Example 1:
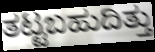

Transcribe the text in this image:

ತಟ್ಟಬಹುದಿತ್ತು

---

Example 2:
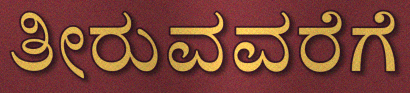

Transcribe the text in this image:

ತೀರುವವರೆಗೆ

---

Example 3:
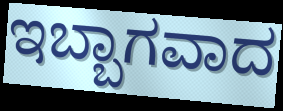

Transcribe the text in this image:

ಇಬ್ಬಾಗವಾದ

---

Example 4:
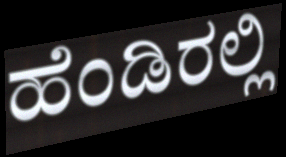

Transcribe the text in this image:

ಹೆಂಡಿರಲ್ಲಿ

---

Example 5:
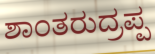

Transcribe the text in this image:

ಶಾಂತರುದ್ರಪ್ಪ